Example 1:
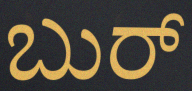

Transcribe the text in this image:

ಬುರ್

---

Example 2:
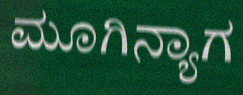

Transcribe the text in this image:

ಮೂಗಿನ್ಯಾಗ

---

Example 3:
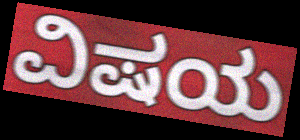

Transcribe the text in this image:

ವಿಷಯ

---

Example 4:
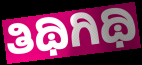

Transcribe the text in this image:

ತಿಥಿಗಿಥಿ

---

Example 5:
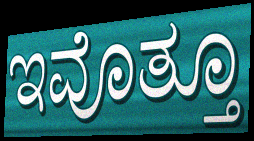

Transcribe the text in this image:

ಇವೊತ್ತೂ